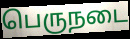
பெருநடை